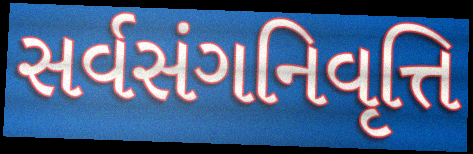
સર્વસંગનિવૃત્તિ